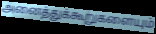
அனைத்துக்கூறுகளையும்